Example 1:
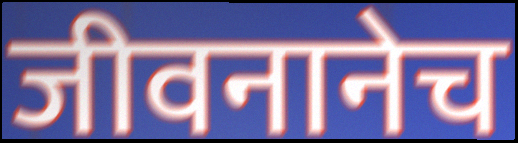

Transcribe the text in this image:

जीवनानेच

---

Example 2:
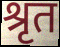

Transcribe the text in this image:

श्रृत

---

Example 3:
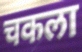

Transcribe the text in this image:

चकला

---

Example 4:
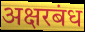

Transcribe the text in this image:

अक्षरबंध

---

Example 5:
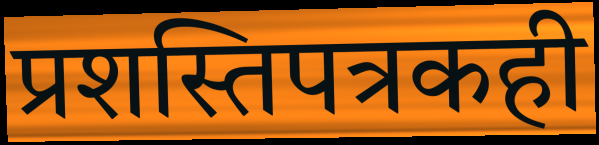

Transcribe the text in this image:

प्रशस्तिपत्रकही